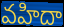
వహిదా